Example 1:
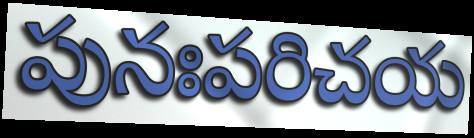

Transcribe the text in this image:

పునఃపరిచయ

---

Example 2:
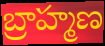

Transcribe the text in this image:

బ్రాహ్మణ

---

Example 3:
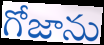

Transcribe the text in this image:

గోజాను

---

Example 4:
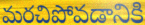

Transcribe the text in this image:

మరచిపోవడానికి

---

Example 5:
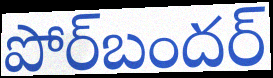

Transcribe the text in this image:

పోర్‌బందర్